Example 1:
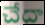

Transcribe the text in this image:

చేదా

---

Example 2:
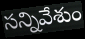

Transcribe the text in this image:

సన్నివేశుం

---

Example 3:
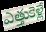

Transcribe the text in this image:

ఎత్తుకెళ్లే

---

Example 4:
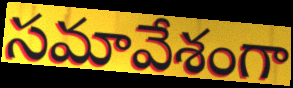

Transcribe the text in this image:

సమావేశంగా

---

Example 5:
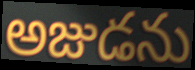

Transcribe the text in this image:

అజుడను